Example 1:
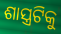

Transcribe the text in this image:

ଶାସ୍ତ୍ରଟିକୁ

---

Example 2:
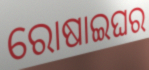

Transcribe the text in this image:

ରୋଷାଇଘର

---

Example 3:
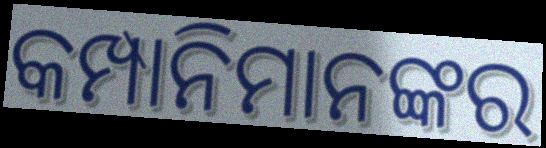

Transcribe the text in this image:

କମ୍ପାନିମାନଙ୍କର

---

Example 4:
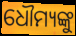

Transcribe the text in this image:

ଧୌମ୍ୟଙ୍କୁ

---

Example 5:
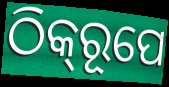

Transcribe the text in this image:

ଠିକ୍‌ରୂପେ